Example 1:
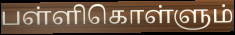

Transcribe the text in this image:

பள்ளிகொள்ளும்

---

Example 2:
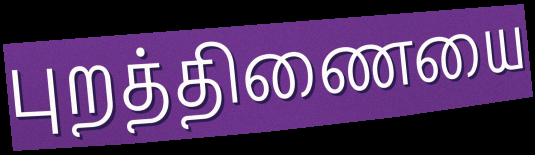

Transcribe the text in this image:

புறத்திணையை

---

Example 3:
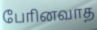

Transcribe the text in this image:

பேரினவாத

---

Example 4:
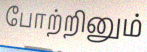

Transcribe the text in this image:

போற்றினும்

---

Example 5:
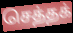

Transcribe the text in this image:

செத்தக்